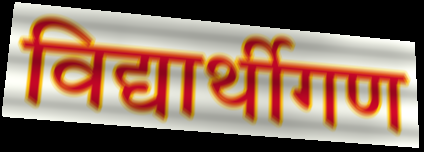
विद्यार्थीगण